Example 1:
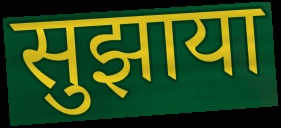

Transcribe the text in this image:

सुझाया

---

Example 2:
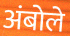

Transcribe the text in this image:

अंबोले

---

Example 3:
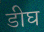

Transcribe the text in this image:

डीघ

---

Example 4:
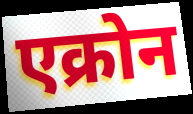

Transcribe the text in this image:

एक्रोन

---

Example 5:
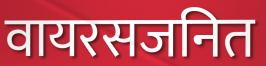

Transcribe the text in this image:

वायरसजनित